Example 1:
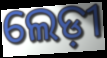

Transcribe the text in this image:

ଲେଡ଼ୀ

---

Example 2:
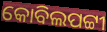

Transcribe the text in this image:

କୋବିଲପଟ୍ଟୀ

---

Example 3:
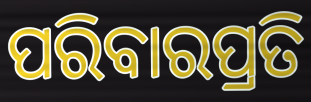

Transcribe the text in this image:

ପରିବାରପ୍ରତି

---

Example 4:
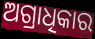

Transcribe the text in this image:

ଅଗ୍ରାଧିକାର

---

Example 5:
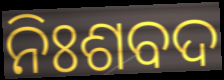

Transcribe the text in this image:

ନିଃଶବଦ